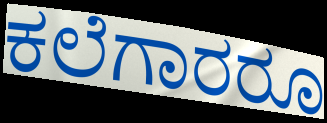
ಕಲೆಗಾರರೂ